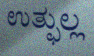
ಉತ್ಫುಲ್ಲ